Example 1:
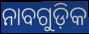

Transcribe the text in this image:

ନାବଗୁଡ଼ିକ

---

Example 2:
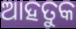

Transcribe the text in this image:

ଆହତୁକ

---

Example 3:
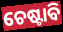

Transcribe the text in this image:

ଚେଷ୍ଟାବି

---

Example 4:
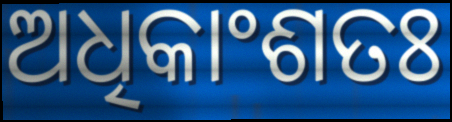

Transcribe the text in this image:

ଅଧିକାଂଶତଃ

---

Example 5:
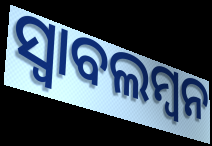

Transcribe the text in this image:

ସ୍ୱାବଲମ୍ବନ